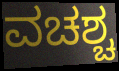
ವಚಶ್ಚ